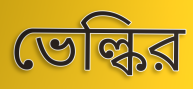
ভেল্কির